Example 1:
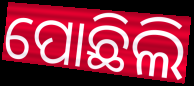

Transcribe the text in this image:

ପୋଛିଲି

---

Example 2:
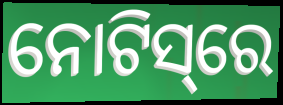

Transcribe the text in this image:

ନୋଟିସ୍‌ରେ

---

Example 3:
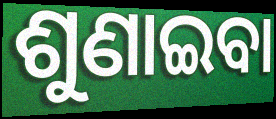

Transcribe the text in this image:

ଶୁଣାଇବା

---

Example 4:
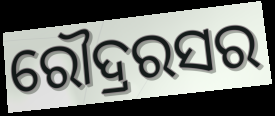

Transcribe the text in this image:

ରୌଦ୍ରରସର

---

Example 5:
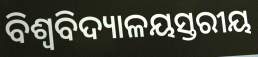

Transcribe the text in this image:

ବିଶ୍ଵବିଦ୍ୟାଳୟସ୍ତରୀୟ